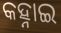
କହ୍ନାଇ